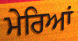
ਮੇਰਿਆਂ